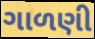
ગાળણી